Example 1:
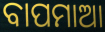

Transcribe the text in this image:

ବାପମାଆ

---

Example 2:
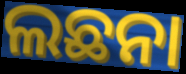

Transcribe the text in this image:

ଲଛନା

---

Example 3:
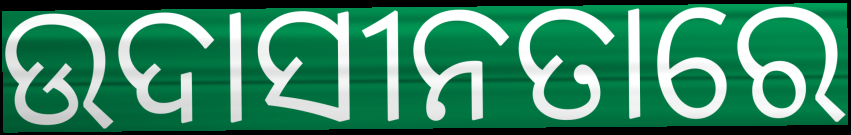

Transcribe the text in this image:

ଉଦାସୀନତାରେ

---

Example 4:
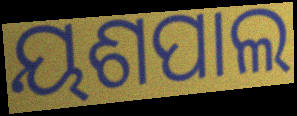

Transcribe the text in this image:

ୟଶପାଲ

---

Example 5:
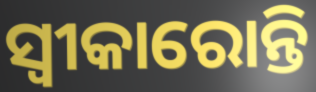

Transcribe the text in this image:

ସ୍ଵୀକାରୋନ୍ତି